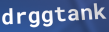
drggtank